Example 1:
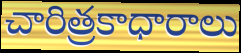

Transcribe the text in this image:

చారిత్రకాధారాలు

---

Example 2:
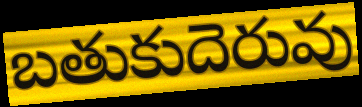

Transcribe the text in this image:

బతుకుదెరువు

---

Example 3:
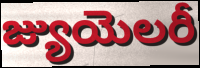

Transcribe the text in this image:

జ్యుయెలరీ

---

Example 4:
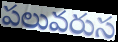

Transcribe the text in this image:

పలువరుస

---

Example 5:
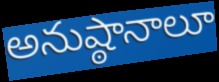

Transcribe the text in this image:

అనుష్ఠానాలూ